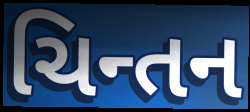
ચિન્તન